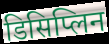
डिसिप्लिन